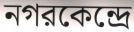
নগরকেন্দ্রে